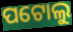
ପଟୋଲୁ